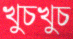
খুচখুচ